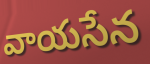
వాయసేన